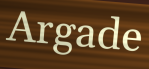
Argade